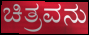
ಚಿತ್ರವನು